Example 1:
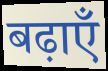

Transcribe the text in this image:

बढ़ाएँ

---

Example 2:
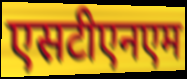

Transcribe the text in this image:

एसटीएनएम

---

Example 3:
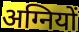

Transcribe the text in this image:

अग्नियों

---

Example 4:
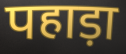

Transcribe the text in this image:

पहाड़ा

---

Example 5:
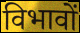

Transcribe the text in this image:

विभावों